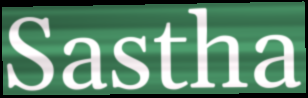
Sastha